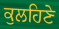
ਕੁਲਹਿਣੇ